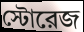
স্টোরেজ